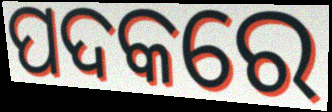
ପଦକରେ